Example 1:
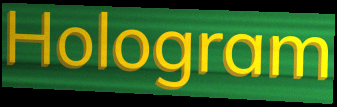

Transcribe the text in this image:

Hologram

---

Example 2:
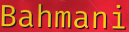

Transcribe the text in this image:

Bahmani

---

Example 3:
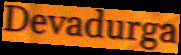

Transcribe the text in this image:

Devadurga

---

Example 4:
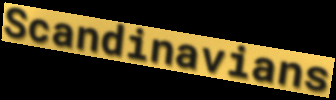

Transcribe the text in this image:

Scandinavians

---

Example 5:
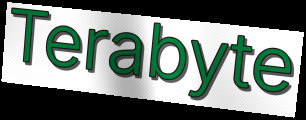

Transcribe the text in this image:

Terabyte